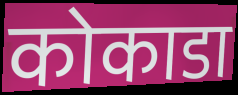
कोकाडा